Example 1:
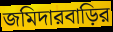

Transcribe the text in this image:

জমিদারবাড়ির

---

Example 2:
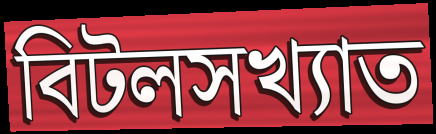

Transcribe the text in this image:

বিটলসখ্যাত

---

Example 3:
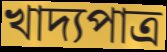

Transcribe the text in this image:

খাদ্যপাত্র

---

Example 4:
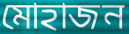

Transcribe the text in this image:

মোহাজন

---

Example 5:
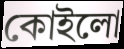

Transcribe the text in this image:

কোইলো